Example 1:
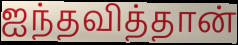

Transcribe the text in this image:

ஐந்தவித்தான்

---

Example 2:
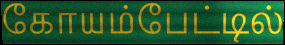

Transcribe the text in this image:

கோயம்பேட்டில்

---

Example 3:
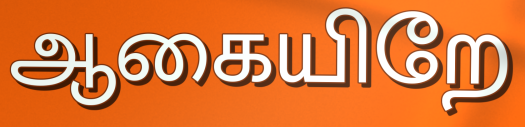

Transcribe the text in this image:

ஆகையிறே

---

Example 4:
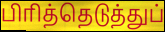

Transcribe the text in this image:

பிரித்தெடுத்துப்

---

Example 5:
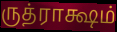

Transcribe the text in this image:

ருத்ராக்ஷம்